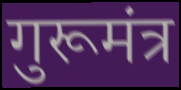
गुरूमंत्र